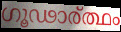
ഗൂഢാര്ത്ഥം